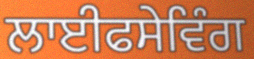
ਲਾਈਫਸੇਵਿੰਗ